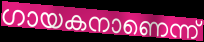
ഗായകനാണെന്ന്